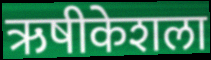
ऋषीकेशला